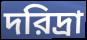
দরিদ্রা